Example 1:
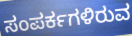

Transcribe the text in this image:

ಸಂಪರ್ಕಗಳಿರುವ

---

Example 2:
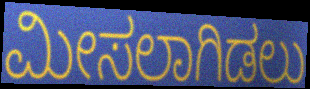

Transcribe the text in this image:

ಮೀಸಲಾಗಿಡಲು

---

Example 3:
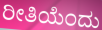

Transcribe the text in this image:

ರೀತಿಯೆಂದು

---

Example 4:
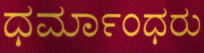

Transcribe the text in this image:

ಧರ್ಮಾಂಧರು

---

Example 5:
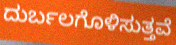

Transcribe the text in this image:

ದುರ್ಬಲಗೊಳಿಸುತ್ತವೆ